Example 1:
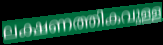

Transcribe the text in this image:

ലക്ഷണത്തികവുള്ള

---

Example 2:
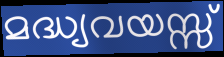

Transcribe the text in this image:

മദ്ധ്യവയസ്സ്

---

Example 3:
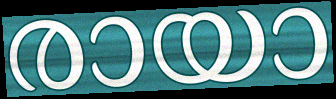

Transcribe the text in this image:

രായാ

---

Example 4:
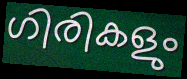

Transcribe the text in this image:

ഗിരികളും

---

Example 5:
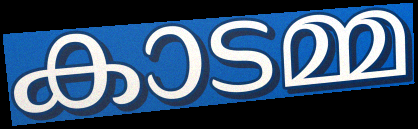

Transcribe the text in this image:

കാടമ്മ